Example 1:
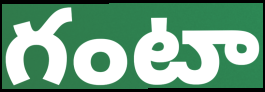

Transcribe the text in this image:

గంటా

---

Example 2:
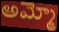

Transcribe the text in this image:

అమ్మో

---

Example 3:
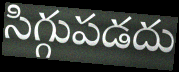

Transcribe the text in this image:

సిగ్గుపడదు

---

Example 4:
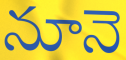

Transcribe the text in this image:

నూనె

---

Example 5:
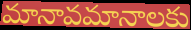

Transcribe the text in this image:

మానావమానాలకు